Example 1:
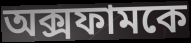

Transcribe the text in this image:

অক্সফামকে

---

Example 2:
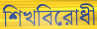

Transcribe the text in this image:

শিখবিরোধী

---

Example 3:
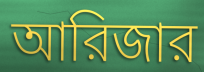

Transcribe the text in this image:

আরিজার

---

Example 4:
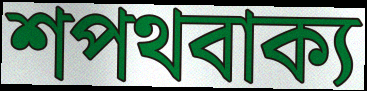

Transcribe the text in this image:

শপথবাক্য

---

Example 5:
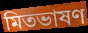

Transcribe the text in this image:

মিতভাষণ